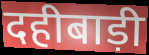
दहीबाड़ी